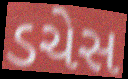
ડચેસ